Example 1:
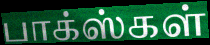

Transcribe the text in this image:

பாக்ஸ்கள்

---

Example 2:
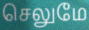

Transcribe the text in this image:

செலுமே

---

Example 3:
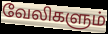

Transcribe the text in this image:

வேலிகளும்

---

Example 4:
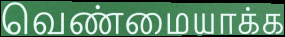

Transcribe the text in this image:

வெண்மையாக்க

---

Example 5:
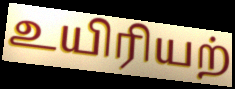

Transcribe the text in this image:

உயிரியற்